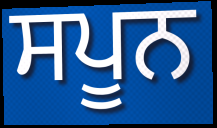
ਸਪੂਨ